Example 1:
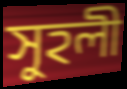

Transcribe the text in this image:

সুহলী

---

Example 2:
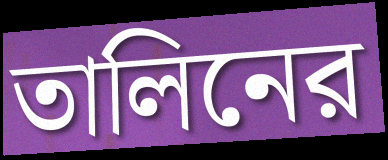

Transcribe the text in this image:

তালিনের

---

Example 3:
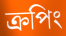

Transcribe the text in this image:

ক্রপিং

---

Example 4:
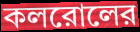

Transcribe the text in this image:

কলরোলের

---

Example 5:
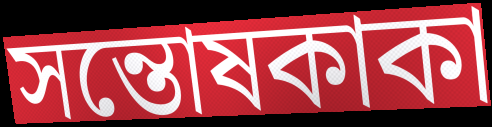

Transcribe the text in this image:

সন্তোষকাকা